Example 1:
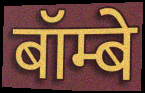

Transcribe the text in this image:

बॉम्‍बे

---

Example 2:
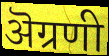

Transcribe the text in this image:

ऄग्रणी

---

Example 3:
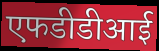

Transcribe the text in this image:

एफडीडीआई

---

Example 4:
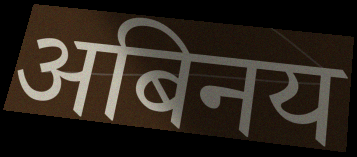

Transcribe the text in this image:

अबिनय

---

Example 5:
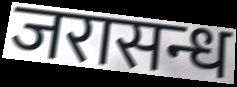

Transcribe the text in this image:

जरासन्ध